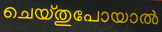
ചെയ്തുപോയാൽ